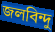
জলবিন্দু